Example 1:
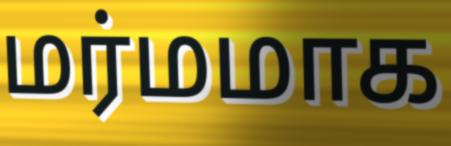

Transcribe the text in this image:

மர்மமாக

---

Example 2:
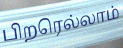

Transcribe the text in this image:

பிறரெல்லாம்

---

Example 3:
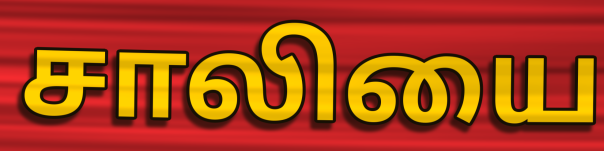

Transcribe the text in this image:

சாலியை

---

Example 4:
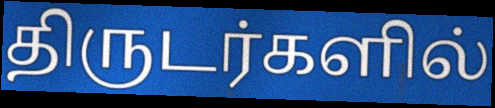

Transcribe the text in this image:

திருடர்களில்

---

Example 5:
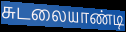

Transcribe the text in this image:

சுடலையாண்டி